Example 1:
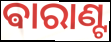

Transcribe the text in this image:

ଵାରାଣ୍ଟ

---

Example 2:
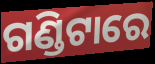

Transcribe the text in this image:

ଗଣ୍ଡିଟାରେ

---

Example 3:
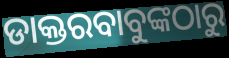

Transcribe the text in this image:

ଡାକ୍ତରବାବୁଙ୍କଠାରୁ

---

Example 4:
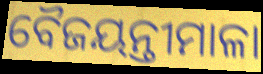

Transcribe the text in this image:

ବୈଜୟନ୍ତୀମାଳା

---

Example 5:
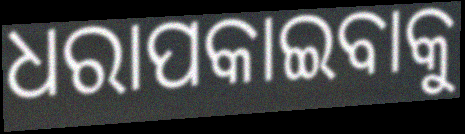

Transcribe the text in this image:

ଧରାପକାଇବାକୁ